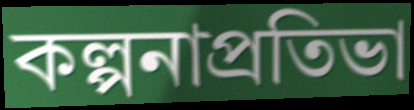
কল্পনাপ্রতিভা